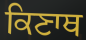
ਕਿਣਾਥ